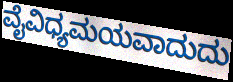
ವೈವಿಧ್ಯಮಯವಾದುದು